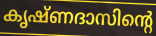
കൃഷ്ണദാസിന്റെ